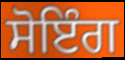
ਸੋਇੰਗ